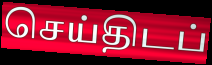
செய்திடப்